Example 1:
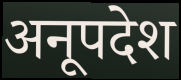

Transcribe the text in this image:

अनूपदेश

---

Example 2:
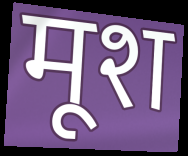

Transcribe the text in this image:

मूश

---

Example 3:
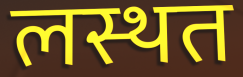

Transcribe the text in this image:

लस्थत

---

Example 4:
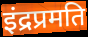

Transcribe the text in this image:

इंद्रप्रमति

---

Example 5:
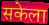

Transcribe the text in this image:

सकेला